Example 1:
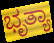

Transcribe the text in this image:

ಭೃತ್ಯಾ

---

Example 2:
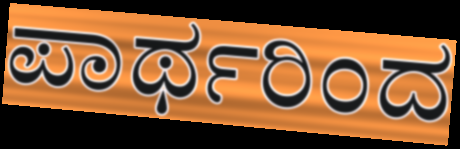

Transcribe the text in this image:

ಪಾರ್ಥರಿಂದ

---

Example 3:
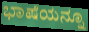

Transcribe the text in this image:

ಭಾಷೆಯನ್ನೂ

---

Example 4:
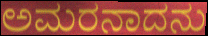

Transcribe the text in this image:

ಅಮರನಾದನು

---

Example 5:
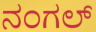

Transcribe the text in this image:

ನಂಗಲ್